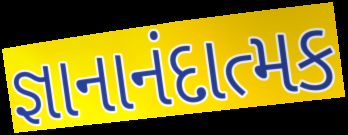
જ્ઞાનાનંદાત્મક